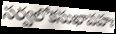
సర్వలోకసుఖావహః